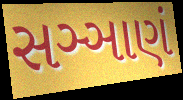
સઞ્ઞાણં